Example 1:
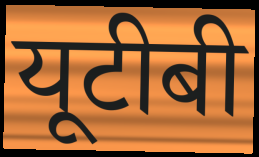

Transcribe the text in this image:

यूटीबी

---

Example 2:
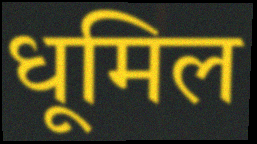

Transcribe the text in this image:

धूमिल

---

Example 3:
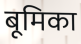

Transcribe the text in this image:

बूमिका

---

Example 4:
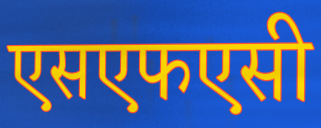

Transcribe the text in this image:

एसएफएसी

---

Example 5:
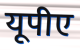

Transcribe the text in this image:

यूपीए